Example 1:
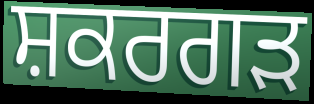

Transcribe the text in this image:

ਸ਼ਕਰਗੜ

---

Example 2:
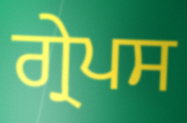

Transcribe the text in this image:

ਗ੍ਰੇਪਸ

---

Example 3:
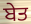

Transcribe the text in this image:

ਬੇਤ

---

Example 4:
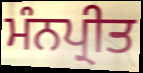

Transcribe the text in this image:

ਮੰਨਪ੍ਰੀਤ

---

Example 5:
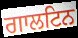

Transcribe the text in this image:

ਗਾਲਟਿਨ